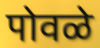
पोवळे